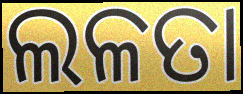
ଲଳତା